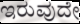
ಇರುವುದೇ